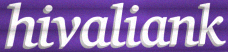
hivaliank